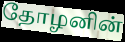
தோழனின்